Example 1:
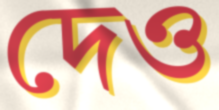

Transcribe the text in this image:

দেও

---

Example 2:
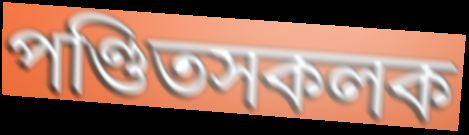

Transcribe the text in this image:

পণ্ডিতসকলক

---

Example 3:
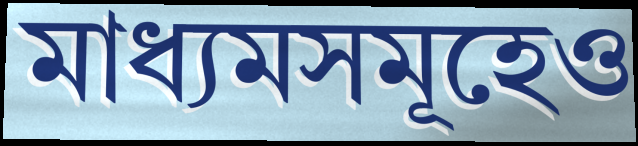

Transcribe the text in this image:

মাধ্য়মসমূহেও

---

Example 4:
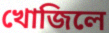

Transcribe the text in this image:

খোজিলে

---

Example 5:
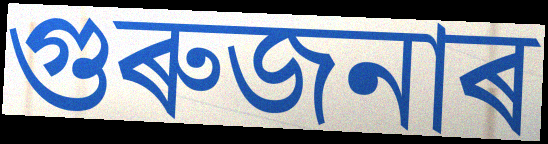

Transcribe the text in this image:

গুৰুজনাৰ